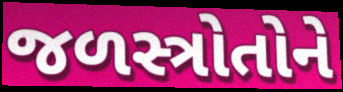
જળસ્ત્રોતોને